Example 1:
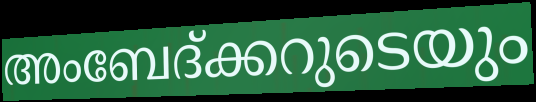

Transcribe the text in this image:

അംബേദ്ക്കറുടെയും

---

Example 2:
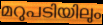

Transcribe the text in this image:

മറുപടിയിലും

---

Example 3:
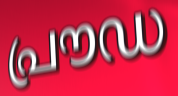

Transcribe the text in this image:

പ്രൗഡ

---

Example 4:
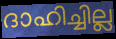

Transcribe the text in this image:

ദാഹിച്ചില്ല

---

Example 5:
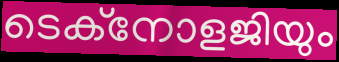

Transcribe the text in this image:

ടെക്നോളജിയും